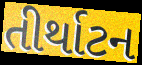
તીર્થાટન